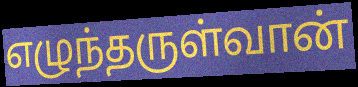
எழுந்தருள்வான்